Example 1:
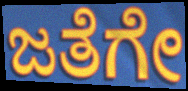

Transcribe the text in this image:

ಜತೆಗೇ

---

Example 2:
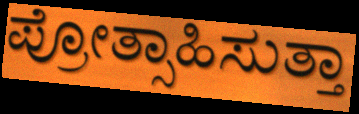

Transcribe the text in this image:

ಪ್ರೋತ್ಸಾಹಿಸುತ್ತಾ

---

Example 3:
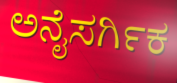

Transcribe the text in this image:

ಅನೈಸರ್ಗಿಕ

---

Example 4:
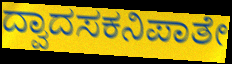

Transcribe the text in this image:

ದ್ವಾದಸಕನಿಪಾತೇ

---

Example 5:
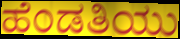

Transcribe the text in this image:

ಹೆಂಡತಿಯು